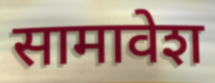
सामावेश